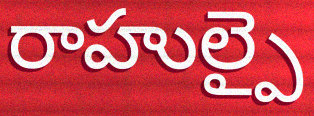
రాహుల్పై